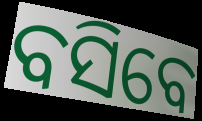
ବସିବେ